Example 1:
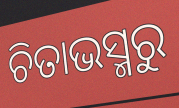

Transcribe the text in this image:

ଚିତାଭସ୍ମରୁ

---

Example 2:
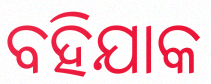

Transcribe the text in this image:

ବହିଯାକ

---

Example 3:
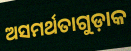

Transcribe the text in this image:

ଅସମର୍ଥତାଗୁଡ଼ାକ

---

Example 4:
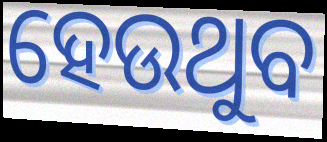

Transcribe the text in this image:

ହେଉଥୁବ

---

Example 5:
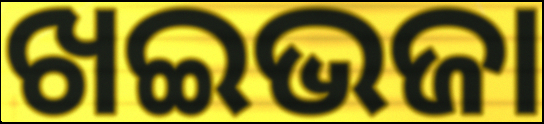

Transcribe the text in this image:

ଖଇଭଜା